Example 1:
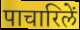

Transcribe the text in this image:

पाचारिलें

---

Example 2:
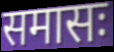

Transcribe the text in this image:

समासः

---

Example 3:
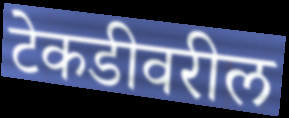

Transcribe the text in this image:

टेकडीवरील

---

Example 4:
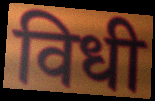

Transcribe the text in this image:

विधी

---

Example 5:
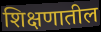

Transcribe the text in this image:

शिक्षणातील